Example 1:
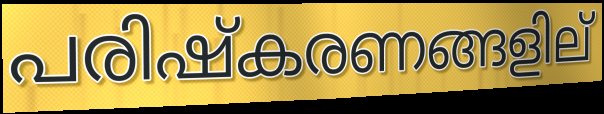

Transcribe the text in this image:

പരിഷ്കരണങ്ങളില്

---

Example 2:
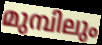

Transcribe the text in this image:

മുമ്പിലും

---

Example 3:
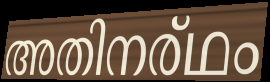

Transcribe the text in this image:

അതിനര്ഥം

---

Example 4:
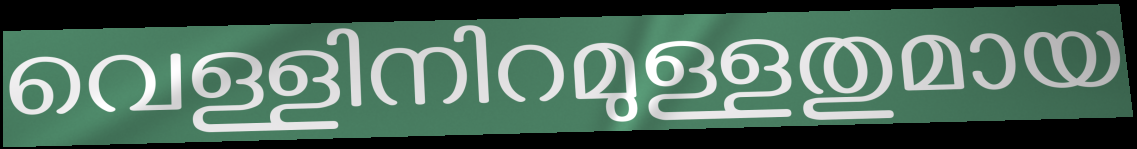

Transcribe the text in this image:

വെള്ളിനിറമുള്ളതുമായ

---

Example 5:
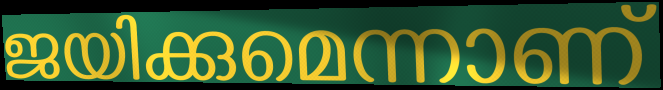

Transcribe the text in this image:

ജയിക്കുമെന്നാണ്